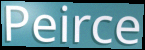
Peirce